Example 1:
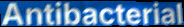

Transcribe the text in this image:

Antibacterial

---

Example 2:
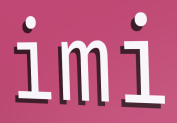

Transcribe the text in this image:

imi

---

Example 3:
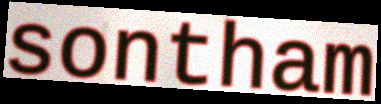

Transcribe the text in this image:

sontham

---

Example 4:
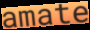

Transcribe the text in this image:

amate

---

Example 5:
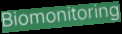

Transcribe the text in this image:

Biomonitoring